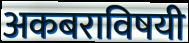
अकबराविषयी